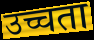
उच्चता